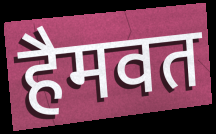
हैमवत